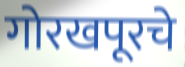
गोरखपूरचे